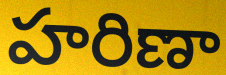
హరిణా